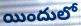
యిందులో